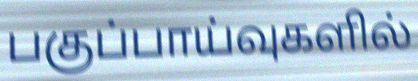
பகுப்பாய்வுகளில்